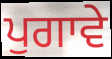
ਪੁਗਾਵੇ